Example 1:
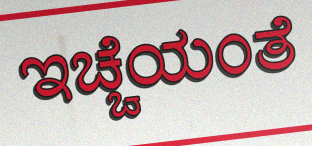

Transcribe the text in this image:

ಇಚ್ಚೆಯಂತೆ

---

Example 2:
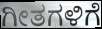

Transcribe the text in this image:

ಗೀತಗಳಿಗೆ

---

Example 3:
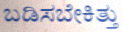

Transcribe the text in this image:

ಬಡಿಸಬೇಕಿತ್ತು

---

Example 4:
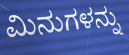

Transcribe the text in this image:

ಮಿನುಗಳನ್ನು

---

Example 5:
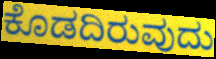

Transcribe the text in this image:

ಕೊಡದಿರುವುದು